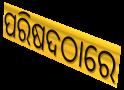
ପରିଷଦଠାରେ